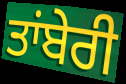
ਤਾਂਬੇਰੀ